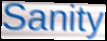
Sanity